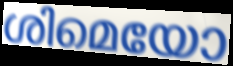
ശിമെയോ